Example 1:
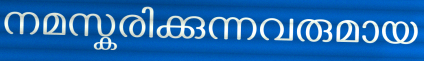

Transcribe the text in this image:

നമസ്കരിക്കുന്നവരുമായ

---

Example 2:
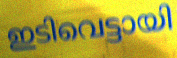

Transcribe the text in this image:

ഇടിവെട്ടായി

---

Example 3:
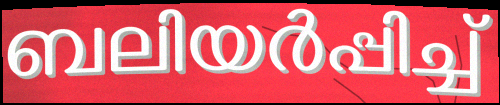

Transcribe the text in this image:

ബലിയർപ്പിച്ച്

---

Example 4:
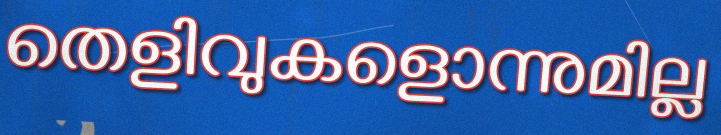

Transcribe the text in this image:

തെളിവുകളൊന്നുമില്ല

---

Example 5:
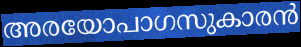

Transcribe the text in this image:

അരയോപാഗസുകാരൻ